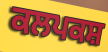
ਕਲਪਕਸ਼